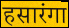
हसारंगा